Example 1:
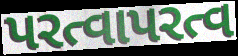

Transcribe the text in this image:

પરત્વાપરત્વ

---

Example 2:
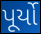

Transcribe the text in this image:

પૂર્યો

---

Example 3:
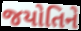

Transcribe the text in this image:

જયોતિને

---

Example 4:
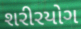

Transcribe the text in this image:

શરીરયોગ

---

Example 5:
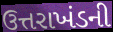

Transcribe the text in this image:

ઉત્તરાખંડની